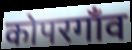
कोपरगाँव